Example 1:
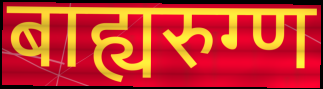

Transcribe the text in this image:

बाह्यरुग्ण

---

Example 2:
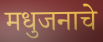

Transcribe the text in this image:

मधुजनाचे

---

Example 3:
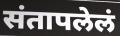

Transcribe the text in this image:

संतापलेलं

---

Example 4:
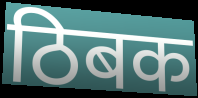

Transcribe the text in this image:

ठिबक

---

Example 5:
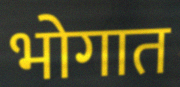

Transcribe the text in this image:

भोगात